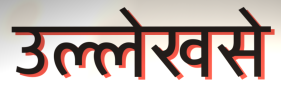
उल्लेखसे